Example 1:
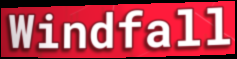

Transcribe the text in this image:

Windfall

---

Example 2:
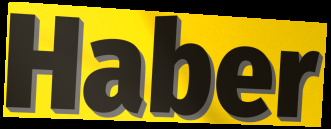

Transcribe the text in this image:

Haber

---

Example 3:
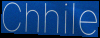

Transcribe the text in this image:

Chhile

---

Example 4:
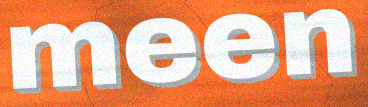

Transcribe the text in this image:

meen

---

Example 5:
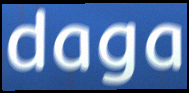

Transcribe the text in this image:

daga